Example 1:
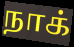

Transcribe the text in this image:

நாக்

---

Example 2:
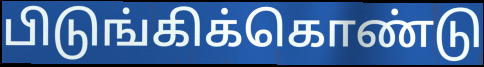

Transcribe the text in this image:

பிடுங்கிக்கொண்டு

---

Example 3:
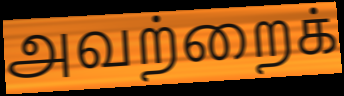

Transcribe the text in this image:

அவற்றைக்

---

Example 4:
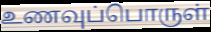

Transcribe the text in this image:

உணவுப்பொருள்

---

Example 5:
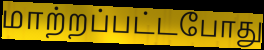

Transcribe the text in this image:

மாற்றப்பட்டபோது